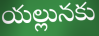
యల్లునకు